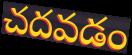
చదవడం